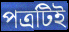
পত্রটিই